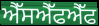
ਐੱਸਐੱਫਐੱਫ